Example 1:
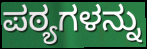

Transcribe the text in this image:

ಪಠ್ಯಗಳನ್ನು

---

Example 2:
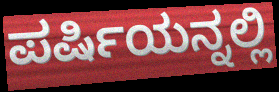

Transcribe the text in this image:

ಪರ್ಷಿಯನ್ನಲ್ಲಿ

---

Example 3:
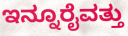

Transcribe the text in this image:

ಇನ್ನೂರೈವತ್ತು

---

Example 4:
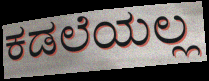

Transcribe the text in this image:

ಕಡಲೆಯಲ್ಲ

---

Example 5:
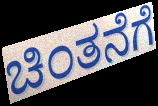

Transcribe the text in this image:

ಚಿಂತನೆಗೆ